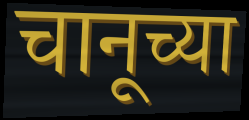
चानूच्या